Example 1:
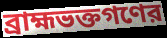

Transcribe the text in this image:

ব্রাহ্মভক্তগণের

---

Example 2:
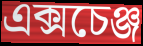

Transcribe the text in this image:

এক্সচেঞ্জ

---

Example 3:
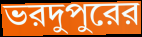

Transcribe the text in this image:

ভরদুপুরের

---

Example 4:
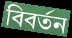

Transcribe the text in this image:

বিবর্তন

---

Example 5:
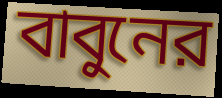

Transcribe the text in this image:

বাবুনের